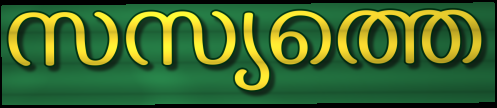
സസ്യത്തെ